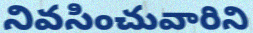
నివసించువారిని